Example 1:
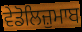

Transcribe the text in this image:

ਵੇਡੋਲਿਜ਼ੁਮਾਬ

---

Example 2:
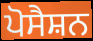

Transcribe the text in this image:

ਪੋਸੈਸ਼ਨ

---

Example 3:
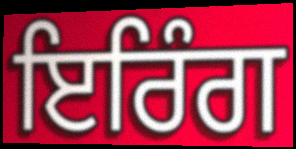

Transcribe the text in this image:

ਇਰਿੰਗ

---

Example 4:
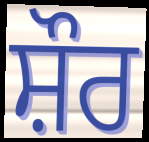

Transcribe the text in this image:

ਸ਼ੌਰ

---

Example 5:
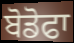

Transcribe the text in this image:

ਬੋਡੋਫਾ